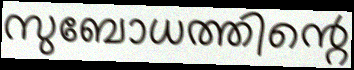
സുബോധത്തിന്റെ